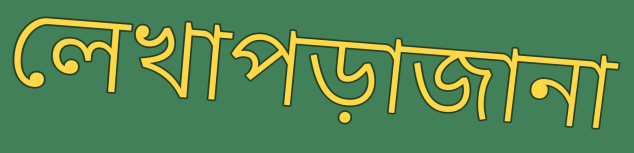
লেখাপড়াজানা